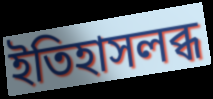
ইতিহাসলব্ধ